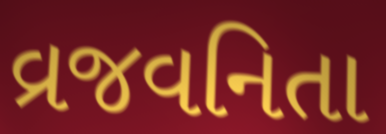
વ્રજવનિતા